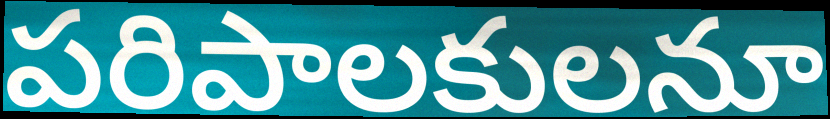
పరిపాలకులనూ